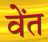
वेंत